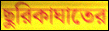
ছুরিকাঘাতের